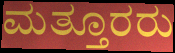
ಮತ್ತೂರರು